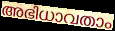
അഭിധാവതാം